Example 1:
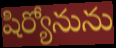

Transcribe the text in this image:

షిర్యోనును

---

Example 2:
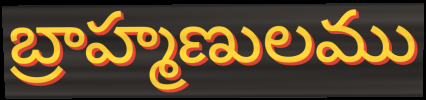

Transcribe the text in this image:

బ్రాహ్మణులము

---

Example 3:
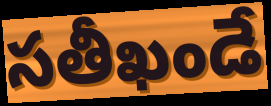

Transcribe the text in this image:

సతీఖండే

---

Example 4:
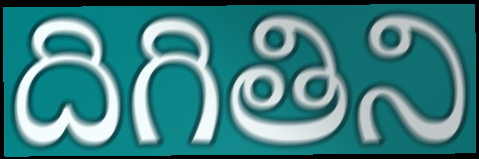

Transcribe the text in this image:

దిగితిని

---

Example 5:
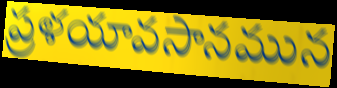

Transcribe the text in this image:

ప్రళయావసానమున